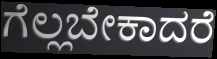
ಗೆಲ್ಲಬೇಕಾದರೆ